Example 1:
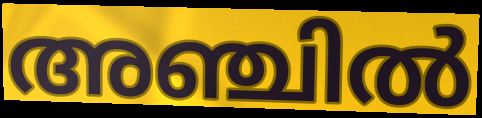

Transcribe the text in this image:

അഞ്ചിൽ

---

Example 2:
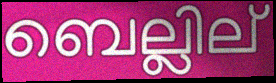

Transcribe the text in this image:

ബെല്ലില്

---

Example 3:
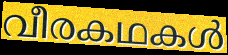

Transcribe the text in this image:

വീരകഥകൾ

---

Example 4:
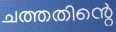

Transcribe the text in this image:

ചത്തതിന്റെ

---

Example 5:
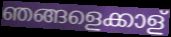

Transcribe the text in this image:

ഞങ്ങളെക്കാള്